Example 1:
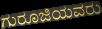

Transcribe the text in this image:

ಗುರೂಜಿಯವರು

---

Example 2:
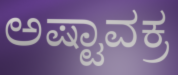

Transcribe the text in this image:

ಅಷ್ಟಾವಕ್ರ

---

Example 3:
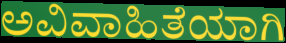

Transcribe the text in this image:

ಅವಿವಾಹಿತೆಯಾಗಿ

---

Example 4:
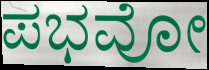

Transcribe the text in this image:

ಪಭವೋ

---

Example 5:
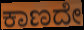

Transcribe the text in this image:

ಕಾಣದೇ